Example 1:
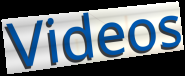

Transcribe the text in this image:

Videos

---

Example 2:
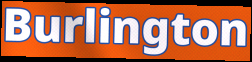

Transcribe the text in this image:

Burlington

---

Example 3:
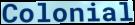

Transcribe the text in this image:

Colonial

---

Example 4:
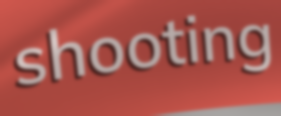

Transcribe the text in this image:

shooting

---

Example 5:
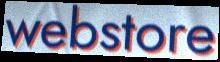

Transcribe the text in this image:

webstore